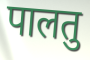
पालतु